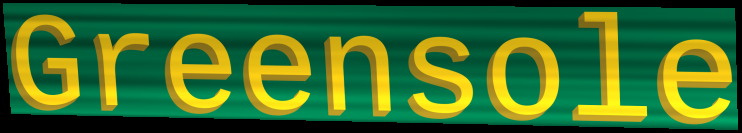
Greensole